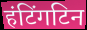
हंटिंगटिन